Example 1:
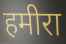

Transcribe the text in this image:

हमीरा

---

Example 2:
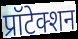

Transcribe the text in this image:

प्रॉटेक्शन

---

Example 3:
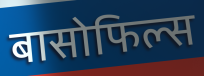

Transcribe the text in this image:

बासोफिल्स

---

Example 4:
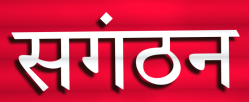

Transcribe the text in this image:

सगंठन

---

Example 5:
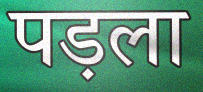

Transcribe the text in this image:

पड़ला